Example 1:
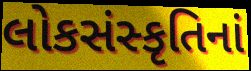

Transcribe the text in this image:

લોકસંસ્કૃતિનાં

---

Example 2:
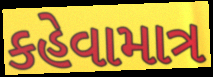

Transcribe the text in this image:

કહેવામાત્ર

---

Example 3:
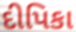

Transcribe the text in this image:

દીપિકા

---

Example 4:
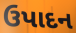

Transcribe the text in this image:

ઉપાદન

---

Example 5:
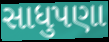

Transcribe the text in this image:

સાધુપણા